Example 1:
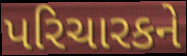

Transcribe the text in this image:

પરિચારકને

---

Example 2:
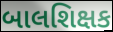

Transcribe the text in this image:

બાલશિક્ષક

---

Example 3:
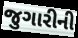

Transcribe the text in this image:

જુગારીની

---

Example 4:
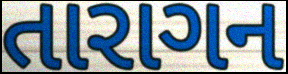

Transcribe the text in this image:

તારાગન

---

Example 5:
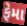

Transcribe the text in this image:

ફેમા